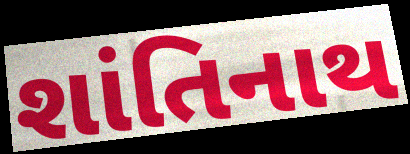
શાંતિનાથ